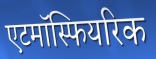
एटमॉस्फियरिक